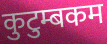
कुटुम्बकम